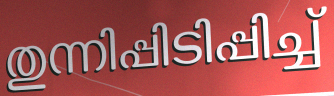
തുന്നിപ്പിടിപ്പിച്ച്